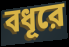
বধূরে